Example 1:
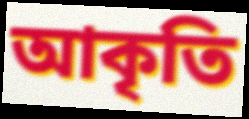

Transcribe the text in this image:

আকৃতি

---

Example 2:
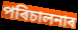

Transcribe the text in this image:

পৰিচালনাৰ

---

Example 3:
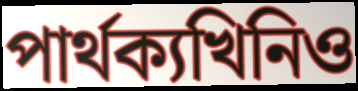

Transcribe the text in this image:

পাৰ্থক্যখিনিও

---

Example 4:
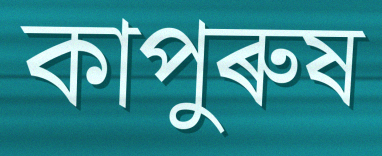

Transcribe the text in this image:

কাপুৰুষ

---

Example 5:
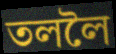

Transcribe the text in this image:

তললৈ